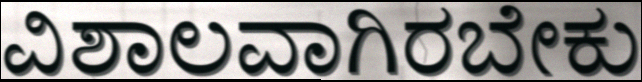
ವಿಶಾಲವಾಗಿರಬೇಕು